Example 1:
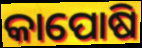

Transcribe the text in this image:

କାପୋଷି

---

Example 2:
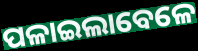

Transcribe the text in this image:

ପଳାଇଲାବେଳେ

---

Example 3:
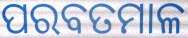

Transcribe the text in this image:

ପରବତମାଳ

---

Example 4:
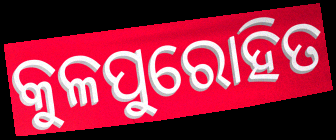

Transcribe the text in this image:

କୁଳପୁରୋହିତ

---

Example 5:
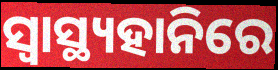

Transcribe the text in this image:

ସ୍ୱାସ୍ଥ୍ୟହାନିରେ